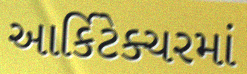
આર્કિટેક્ચરમાં